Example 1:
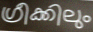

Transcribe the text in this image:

ഗ്രീക്കിലും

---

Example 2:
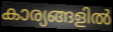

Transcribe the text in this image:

കാര്യങ്ങളിൽ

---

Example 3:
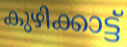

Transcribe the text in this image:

കുഴിക്കാട്ട്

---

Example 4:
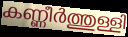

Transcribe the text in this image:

കണ്ണീർത്തുള്ളി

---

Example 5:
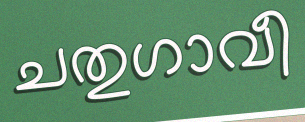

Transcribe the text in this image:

ചതുഗാവീ